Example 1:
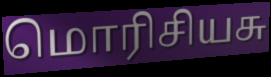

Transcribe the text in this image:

மொரிசியசு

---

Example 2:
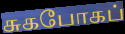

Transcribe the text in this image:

சுகபோகப்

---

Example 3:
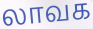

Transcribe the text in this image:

லாவக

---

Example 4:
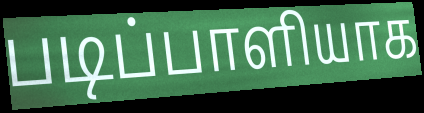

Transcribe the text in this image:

படிப்பாளியாக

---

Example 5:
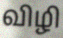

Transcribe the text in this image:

விழி